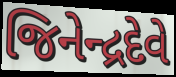
જિનેન્દ્રદેવે